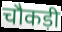
चौकड़ी